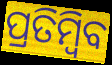
ପ୍ରତିମ୍ବିବ